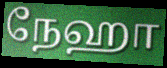
நேஹா